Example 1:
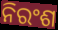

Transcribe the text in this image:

ନିରଂଶ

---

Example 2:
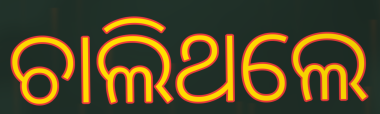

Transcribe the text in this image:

ଚାଲିଥଲେ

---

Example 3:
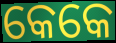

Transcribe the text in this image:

କେକେ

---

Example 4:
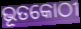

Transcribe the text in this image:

ଭୂତକୋଠୀ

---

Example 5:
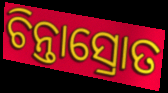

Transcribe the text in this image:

ଚିନ୍ତାସ୍ରୋତ